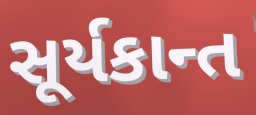
સૂર્યકાન્ત